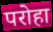
परोहा